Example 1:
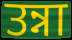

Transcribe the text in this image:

उन्ना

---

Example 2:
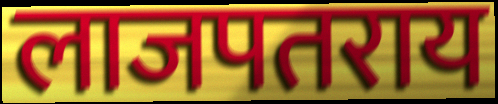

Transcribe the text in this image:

लाजपतराय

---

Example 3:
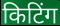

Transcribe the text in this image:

किटिंग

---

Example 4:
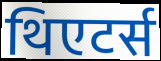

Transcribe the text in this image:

थिएटर्स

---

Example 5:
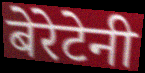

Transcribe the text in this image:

बेरेटेनी